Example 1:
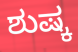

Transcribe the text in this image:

ಶುಷ್ಕ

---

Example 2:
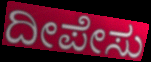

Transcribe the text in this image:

ದೀಪೇಸು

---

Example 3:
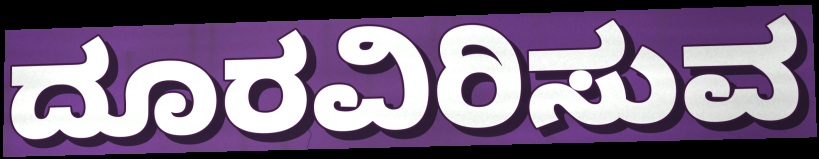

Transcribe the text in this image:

ದೂರವಿರಿಸುವ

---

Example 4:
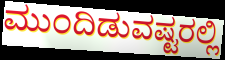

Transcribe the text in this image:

ಮುಂದಿಡುವಷ್ಟರಲ್ಲಿ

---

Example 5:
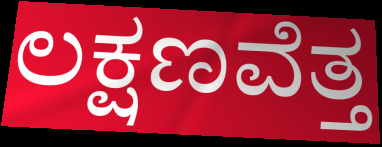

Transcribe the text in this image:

ಲಕ್ಷಣವೆತ್ತ